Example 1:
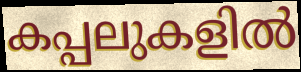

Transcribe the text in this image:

കപ്പലുകളിൽ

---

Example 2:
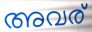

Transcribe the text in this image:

അവര്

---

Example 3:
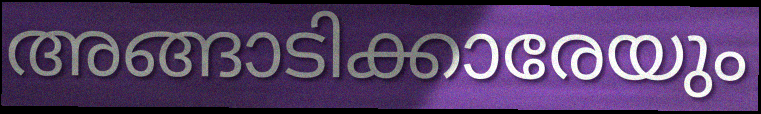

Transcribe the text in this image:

അങ്ങാടിക്കാരേയും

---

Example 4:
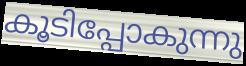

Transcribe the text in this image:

കൂടിപ്പോകുന്നു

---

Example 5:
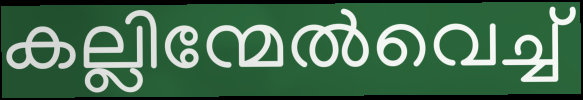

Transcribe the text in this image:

കല്ലിന്മേൽവെച്ച്